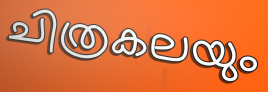
ചിത്രകലയും